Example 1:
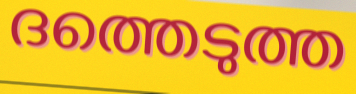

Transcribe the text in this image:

ദത്തെടുത്ത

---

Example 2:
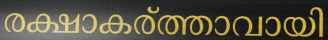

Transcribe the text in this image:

രക്ഷാകര്ത്താവായി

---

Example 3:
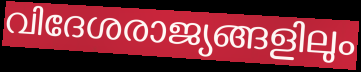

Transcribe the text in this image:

വിദേശരാജ്യങ്ങളിലും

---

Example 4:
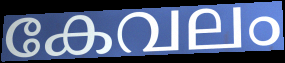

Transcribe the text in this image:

കേവലം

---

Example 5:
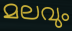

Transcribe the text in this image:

മലവും